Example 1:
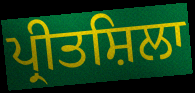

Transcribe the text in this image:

ਪ੍ਰੀਤਸ਼ਿਲਾ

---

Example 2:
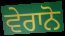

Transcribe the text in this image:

ਵੇਰਾਨੋ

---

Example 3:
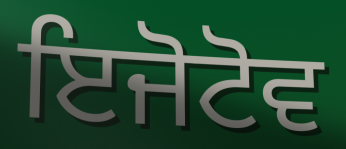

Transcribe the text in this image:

ਇਜੋਟੋਵ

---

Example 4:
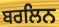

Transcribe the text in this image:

ਬਰਲਿਨ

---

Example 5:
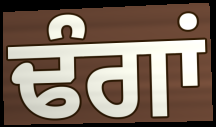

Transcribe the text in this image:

ਢੰਗਾਂ